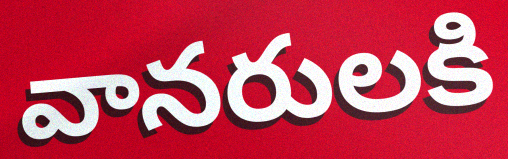
వానరులకి